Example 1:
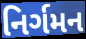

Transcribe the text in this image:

નિર્ગમન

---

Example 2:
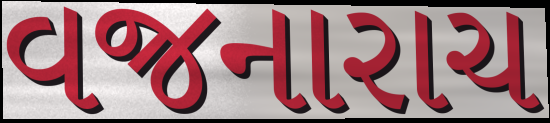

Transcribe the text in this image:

વજ્રનારાચ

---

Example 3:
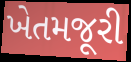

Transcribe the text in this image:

ખેતમજૂરી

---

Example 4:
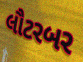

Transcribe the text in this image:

લૌટરબર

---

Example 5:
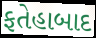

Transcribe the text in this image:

ફતેહાબાદ